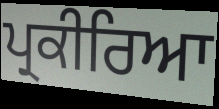
ਪ੍ਰਕੀਰਿਆ